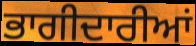
ਭਾਗੀਦਾਰੀਆਂ